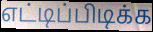
எட்டிப்பிடிக்க